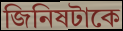
জিনিষটাকে